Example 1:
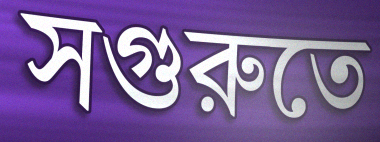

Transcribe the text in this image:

সগুরুতে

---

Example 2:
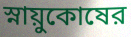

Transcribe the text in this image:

স্নায়ুকোষের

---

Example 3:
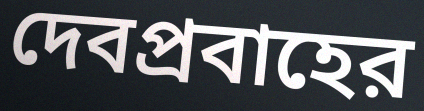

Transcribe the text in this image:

দেবপ্রবাহের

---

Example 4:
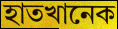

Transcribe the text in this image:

হাতখানেক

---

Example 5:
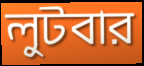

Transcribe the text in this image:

লুটবার